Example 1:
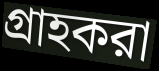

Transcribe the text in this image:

গ্রাহকরা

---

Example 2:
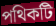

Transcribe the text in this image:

পথিকটি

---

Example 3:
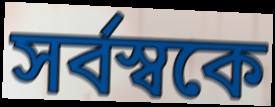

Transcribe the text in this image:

সর্বস্বকে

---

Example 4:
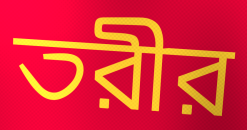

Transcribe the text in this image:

তরীর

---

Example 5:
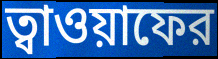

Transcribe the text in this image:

ত্বাওয়াফের